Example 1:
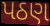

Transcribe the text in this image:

પઠણ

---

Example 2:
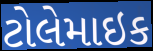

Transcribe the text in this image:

ટોલેમાઇક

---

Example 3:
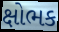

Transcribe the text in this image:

ક્ષોભક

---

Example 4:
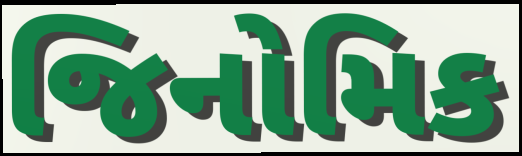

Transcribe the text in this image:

જિનોમિક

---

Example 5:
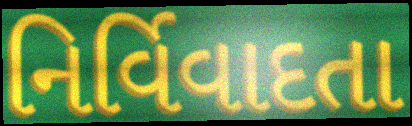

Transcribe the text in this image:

નિર્વિવાદતા